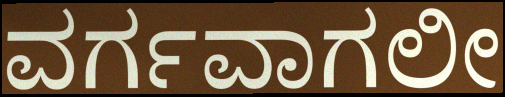
ವರ್ಗವಾಗಲೀ